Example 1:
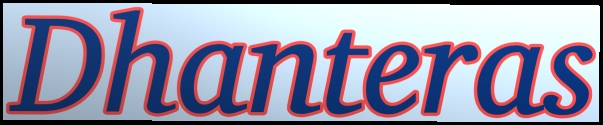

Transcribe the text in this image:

Dhanteras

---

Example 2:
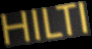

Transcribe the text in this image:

HILTI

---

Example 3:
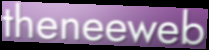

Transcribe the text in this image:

theneeweb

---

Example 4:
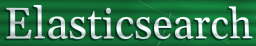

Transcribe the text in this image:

Elasticsearch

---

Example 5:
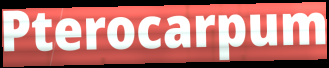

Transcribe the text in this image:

Pterocarpum